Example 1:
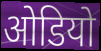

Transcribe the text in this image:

ओडियो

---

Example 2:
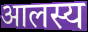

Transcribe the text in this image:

आलस्य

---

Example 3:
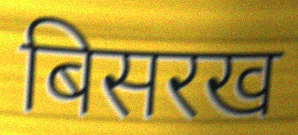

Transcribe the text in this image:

बिसरख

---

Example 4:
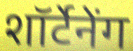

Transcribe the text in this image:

शॉर्टेनेंग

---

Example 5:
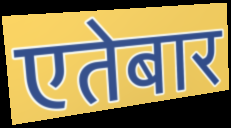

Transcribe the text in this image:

एतेबार